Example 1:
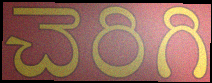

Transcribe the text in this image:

చెరిగి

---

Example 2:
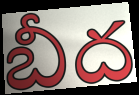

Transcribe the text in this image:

బీద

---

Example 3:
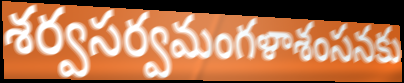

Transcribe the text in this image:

శర్వసర్వమంగళాశంసనకు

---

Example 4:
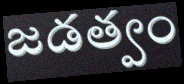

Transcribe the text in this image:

జడత్వం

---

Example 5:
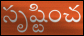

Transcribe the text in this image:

సృష్టించ